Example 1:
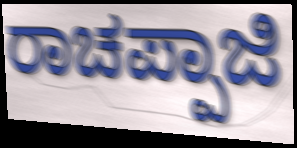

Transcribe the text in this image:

ರಾಚಪ್ಪಾಜಿ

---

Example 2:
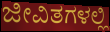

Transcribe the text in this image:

ಜೀವಿತಗಳಲ್ಲಿ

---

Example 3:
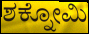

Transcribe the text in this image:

ಶಕ್ನೋಮಿ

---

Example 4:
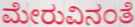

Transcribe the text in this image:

ಮೇರುವಿನಂತೆ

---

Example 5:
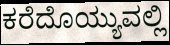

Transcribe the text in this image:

ಕರೆದೊಯ್ಯುವಲ್ಲಿ